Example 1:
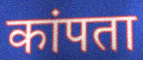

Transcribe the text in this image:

कांपता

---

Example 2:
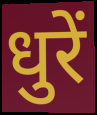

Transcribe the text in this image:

धुरें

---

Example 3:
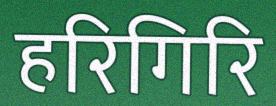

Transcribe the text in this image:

हरिगिरि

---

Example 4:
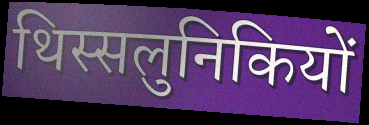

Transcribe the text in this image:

थिस्सलुनिकियों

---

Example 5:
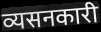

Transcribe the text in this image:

व्यसनकारी